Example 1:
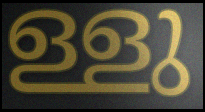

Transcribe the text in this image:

ള്ളു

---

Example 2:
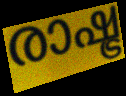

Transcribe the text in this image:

രാഷ്ട്ര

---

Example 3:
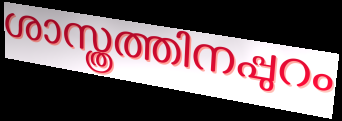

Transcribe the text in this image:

ശാസ്ത്രത്തിനപ്പുറം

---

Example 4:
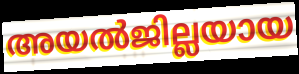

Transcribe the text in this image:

അയൽജില്ലയായ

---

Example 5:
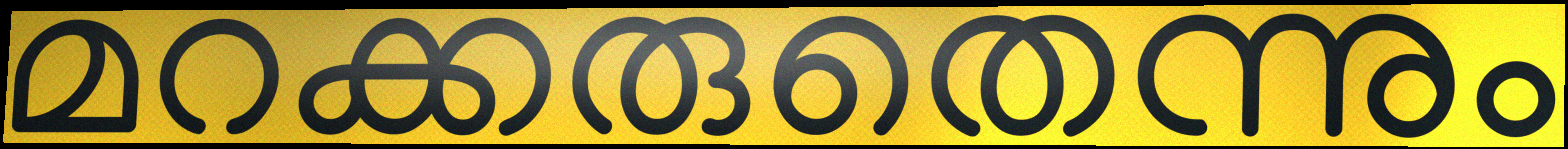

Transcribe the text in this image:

മറക്കരുതെന്നും